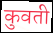
कुवती